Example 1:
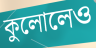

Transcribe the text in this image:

কুলোলেও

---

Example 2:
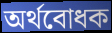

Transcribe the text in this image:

অর্থবোধক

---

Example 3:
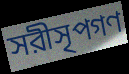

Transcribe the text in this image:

সরীসৃপগণ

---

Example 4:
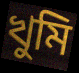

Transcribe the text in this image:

খুমি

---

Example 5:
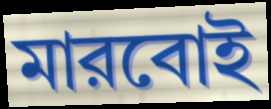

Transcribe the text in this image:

মারবোই